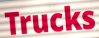
Trucks